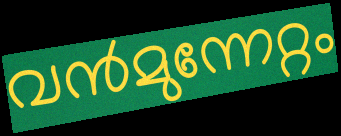
വൻമുന്നേറ്റം